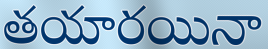
తయారయినా